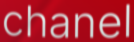
chanel